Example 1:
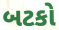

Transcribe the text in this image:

બટકો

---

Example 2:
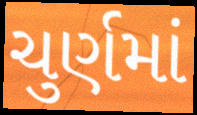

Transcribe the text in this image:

ચુર્ણમાં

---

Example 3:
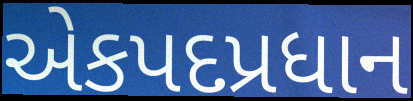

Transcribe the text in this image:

એકપદપ્રધાન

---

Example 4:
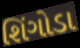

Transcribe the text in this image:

શિંગોડા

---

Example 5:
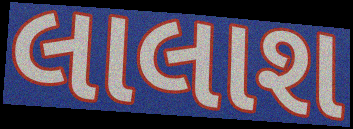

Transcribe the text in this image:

લાલાશ